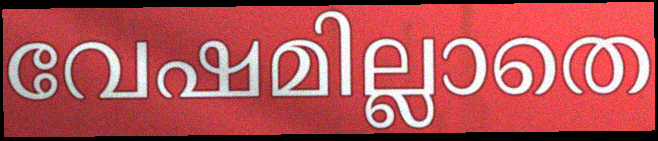
വേഷമില്ലാതെ